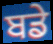
ਬਡੇ